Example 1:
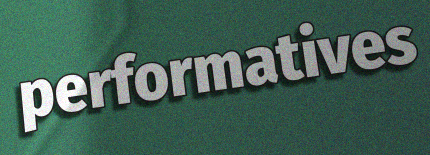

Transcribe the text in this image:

performatives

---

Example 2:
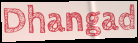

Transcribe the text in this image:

Dhangad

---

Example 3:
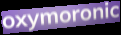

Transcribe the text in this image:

oxymoronic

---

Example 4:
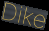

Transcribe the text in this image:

Dike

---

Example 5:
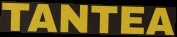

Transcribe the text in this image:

TANTEA